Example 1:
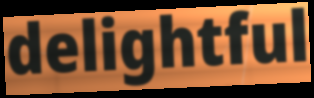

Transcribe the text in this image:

delightful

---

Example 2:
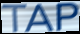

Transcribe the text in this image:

TAP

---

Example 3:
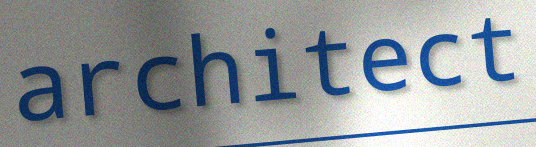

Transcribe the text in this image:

architect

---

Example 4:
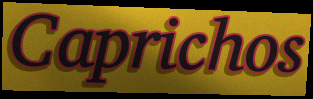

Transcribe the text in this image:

Caprichos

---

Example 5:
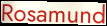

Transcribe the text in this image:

Rosamund